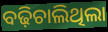
ବଢ଼ିଚାଲିଥିଲା